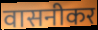
वासनीकर